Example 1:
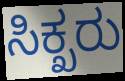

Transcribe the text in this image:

ಸಿಕ್ಖರು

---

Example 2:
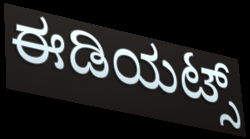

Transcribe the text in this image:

ಈಡಿಯಟ್ಸ್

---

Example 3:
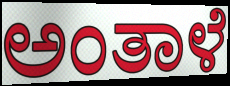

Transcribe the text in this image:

ಅಂತಾಳೆ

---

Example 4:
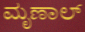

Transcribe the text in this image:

ಮೃಣಾಲ್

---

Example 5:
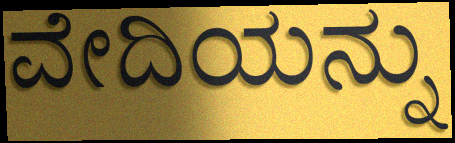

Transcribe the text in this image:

ವೇದಿಯನ್ನು